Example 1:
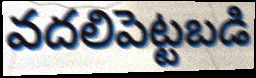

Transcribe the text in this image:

వదలిపెట్టబడి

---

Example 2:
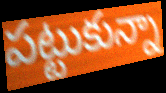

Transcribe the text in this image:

పట్టుకున్నా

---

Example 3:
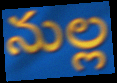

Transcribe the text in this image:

నుల్ల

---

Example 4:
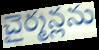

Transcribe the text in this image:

చైర్మన్లను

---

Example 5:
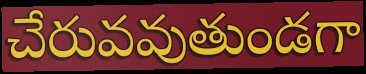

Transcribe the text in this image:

చేరువవుతుండగా